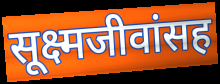
सूक्ष्मजीवांसह